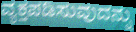
ವ್ಯಕ್ತಪಡಿಸುವುದನ್ನು